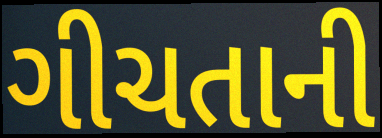
ગીચતાની